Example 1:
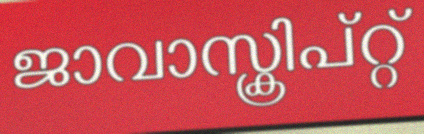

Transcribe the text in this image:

ജാവാസ്ക്രിപ്റ്റ്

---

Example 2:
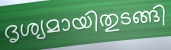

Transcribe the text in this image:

ദൃശ്യമായിതുടങ്ങി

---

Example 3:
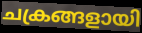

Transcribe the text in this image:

ചക്രങ്ങളായി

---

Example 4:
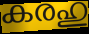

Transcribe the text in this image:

കരഹു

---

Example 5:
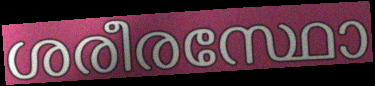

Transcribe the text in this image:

ശരീരസ്ഥോ